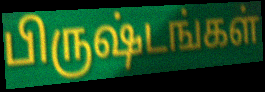
பிருஷ்டங்கள்